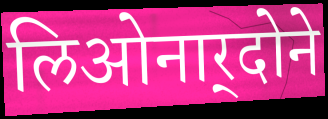
लिओनार्दोने